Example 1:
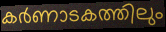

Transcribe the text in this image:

കർണാടകത്തിലും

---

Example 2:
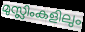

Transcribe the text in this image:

മുസ്ലിംകളിലും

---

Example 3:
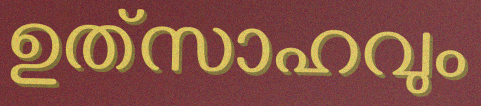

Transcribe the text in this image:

ഉത്‌സാഹവും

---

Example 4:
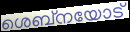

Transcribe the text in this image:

ശെബ്നയോട്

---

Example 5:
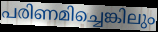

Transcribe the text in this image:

പരിണമിച്ചെങ്കിലും